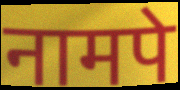
नामपे